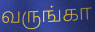
வருங்கா